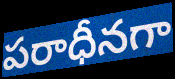
పరాధీనగా